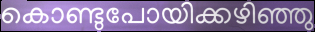
കൊണ്ടുപോയിക്കഴിഞ്ഞു